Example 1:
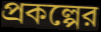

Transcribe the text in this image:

প্রকল্পের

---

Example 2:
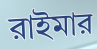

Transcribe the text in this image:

রাইমার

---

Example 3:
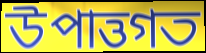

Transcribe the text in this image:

উপাত্তগত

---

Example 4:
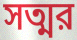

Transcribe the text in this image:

সত্মর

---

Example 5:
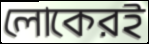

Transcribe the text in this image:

লোকেরই